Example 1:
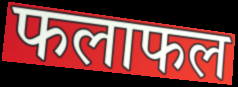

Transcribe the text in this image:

फलाफल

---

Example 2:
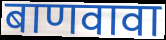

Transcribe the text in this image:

बाणवावा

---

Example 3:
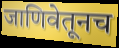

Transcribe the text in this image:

जाणिवेतूनच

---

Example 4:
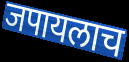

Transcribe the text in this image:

जपायलाच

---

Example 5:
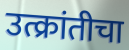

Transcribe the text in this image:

उत्क्रांतीचा